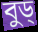
বুড্